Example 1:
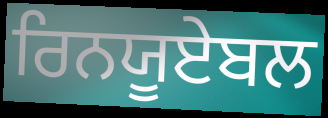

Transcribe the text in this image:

ਰਿਨਯੂਏਬਲ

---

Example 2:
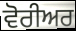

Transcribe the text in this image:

ਵੋਰੀਅਰ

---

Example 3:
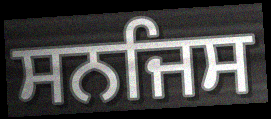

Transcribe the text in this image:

ਸਨਜਿਸ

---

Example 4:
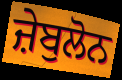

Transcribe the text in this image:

ਜ਼ੇਬੁਲੋਨ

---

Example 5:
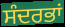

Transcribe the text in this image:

ਸੰਦਰਭਾਂ